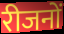
रीजनों